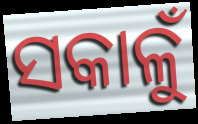
ସକାଳୁଁ